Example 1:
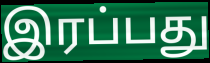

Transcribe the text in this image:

இரப்பது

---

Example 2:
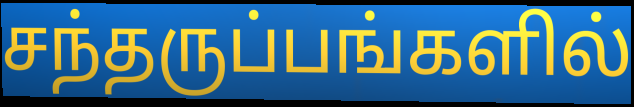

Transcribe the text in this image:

சந்தருப்பங்களில்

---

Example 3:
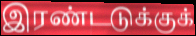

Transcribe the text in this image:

இரண்டடுக்குக்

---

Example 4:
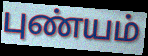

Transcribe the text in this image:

புண்யம்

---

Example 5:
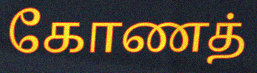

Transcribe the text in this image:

கோணத்